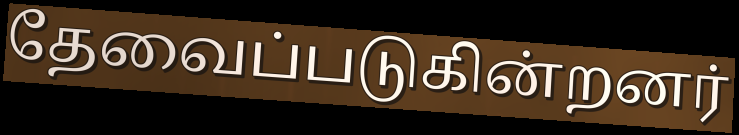
தேவைப்படுகின்றனர்